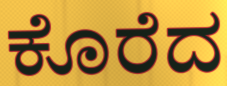
ಕೊರೆದ